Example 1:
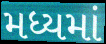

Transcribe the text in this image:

મધ્યમાં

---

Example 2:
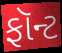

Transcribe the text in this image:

ફૉન્ટ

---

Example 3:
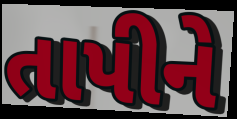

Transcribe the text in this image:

તાપીને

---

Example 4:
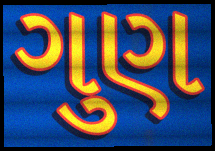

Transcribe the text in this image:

ગુણ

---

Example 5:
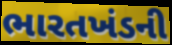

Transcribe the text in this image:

ભારતખંડની